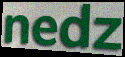
nedz